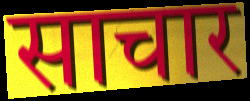
साचार